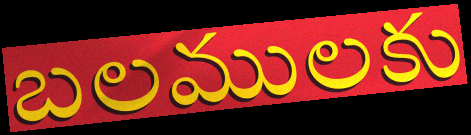
బలములకు